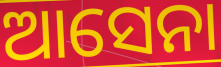
ଆସେନା